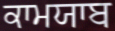
ਕਾਮਯਾਬ